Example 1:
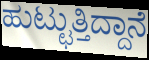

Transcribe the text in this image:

ಹುಟ್ಟುತ್ತಿದ್ದಾನೆ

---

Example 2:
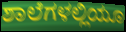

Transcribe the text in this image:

ಶಾಲೆಗಳಲ್ಲಿಯೂ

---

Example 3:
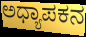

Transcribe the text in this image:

ಅಧ್ಯಾಪಕನ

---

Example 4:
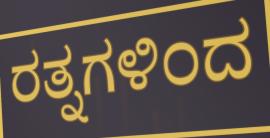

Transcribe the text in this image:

ರತ್ನಗಳಿಂದ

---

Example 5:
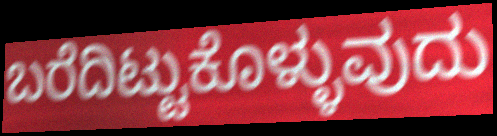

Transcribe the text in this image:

ಬರೆದಿಟ್ಟುಕೊಳ್ಳುವುದು